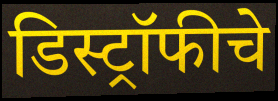
डिस्ट्रॉफीचे